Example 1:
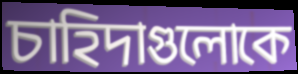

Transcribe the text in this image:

চাহিদাগুলোকে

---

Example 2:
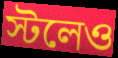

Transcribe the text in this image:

স্টলেও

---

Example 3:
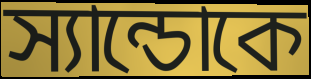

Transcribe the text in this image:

স্যান্ডোকে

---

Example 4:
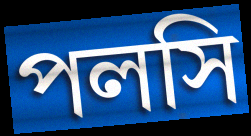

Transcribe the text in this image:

পলসি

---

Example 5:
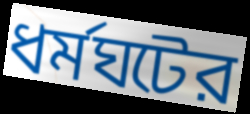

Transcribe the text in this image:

ধর্মঘটের